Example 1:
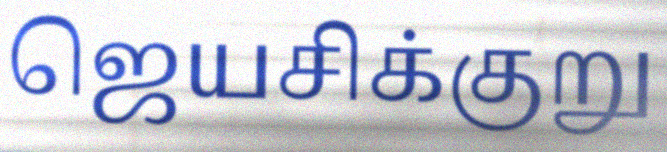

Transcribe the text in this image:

ஜெயசிக்குறு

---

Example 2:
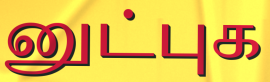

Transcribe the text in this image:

னுட்புக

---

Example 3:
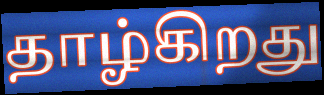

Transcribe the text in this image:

தாழ்கிறது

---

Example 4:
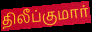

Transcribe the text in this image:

திலீப்குமார்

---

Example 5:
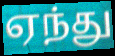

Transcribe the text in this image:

ஏந்து